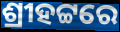
ଶ୍ରୀହଟ୍ଟରେ